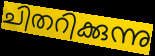
ചിതറിക്കുന്നു